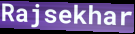
Rajsekhar